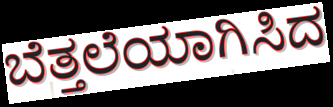
ಬೆತ್ತಲೆಯಾಗಿಸಿದ